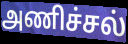
அணிச்சல்